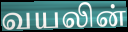
வயலின்